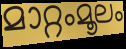
മാറ്റംമൂലം